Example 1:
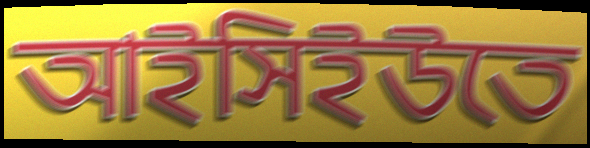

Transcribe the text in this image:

আইসিইউতে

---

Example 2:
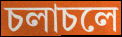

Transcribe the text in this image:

চলাচলে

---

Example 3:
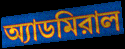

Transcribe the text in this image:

অ্যাডমিরাল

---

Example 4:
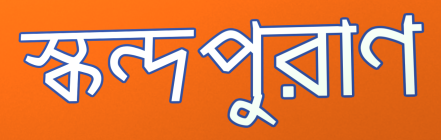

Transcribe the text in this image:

স্কন্দপুরাণ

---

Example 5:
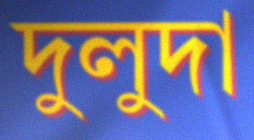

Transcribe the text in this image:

দুলুদা